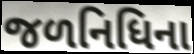
જળનિધિના